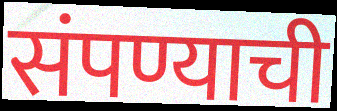
संपण्याची